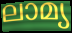
ലാമ്യ